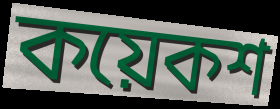
কয়েকশ